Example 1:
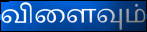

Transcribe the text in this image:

விளைவும்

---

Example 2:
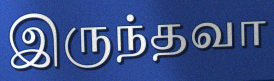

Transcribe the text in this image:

இருந்தவா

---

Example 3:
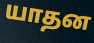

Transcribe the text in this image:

யாதன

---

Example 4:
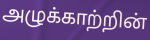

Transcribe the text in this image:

அழுக்காற்றின்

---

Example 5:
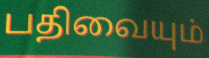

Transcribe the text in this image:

பதிவையும்